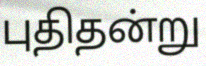
புதிதன்று